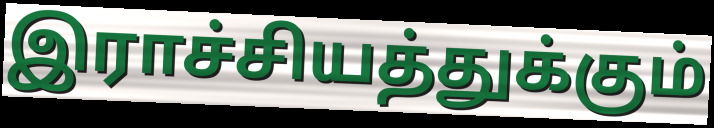
இராச்சியத்துக்கும்